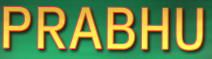
PRABHU